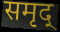
समृद्